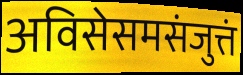
अविसेसमसंजुत्तं